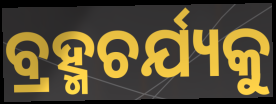
ବ୍ରହ୍ମଚର୍ଯ୍ୟକୁ